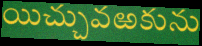
యిచ్చువఱకును